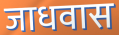
जाधवास